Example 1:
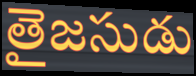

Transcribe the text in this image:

తైజసుడు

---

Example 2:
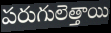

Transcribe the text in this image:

పరుగులెత్తాయి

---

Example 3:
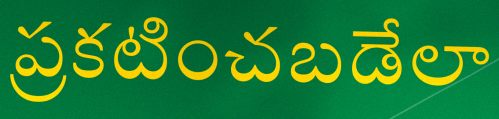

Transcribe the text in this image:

ప్రకటించబడేలా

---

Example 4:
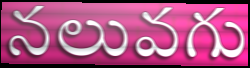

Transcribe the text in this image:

నలువగు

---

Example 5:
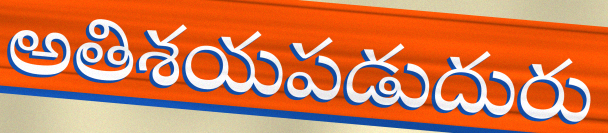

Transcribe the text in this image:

అతిశయపడుదురు